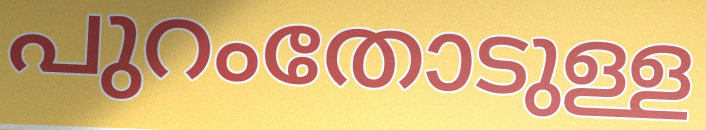
പുറംതോടുള്ള